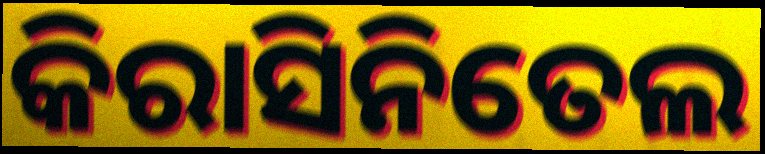
କିରାସିନିତେଲ